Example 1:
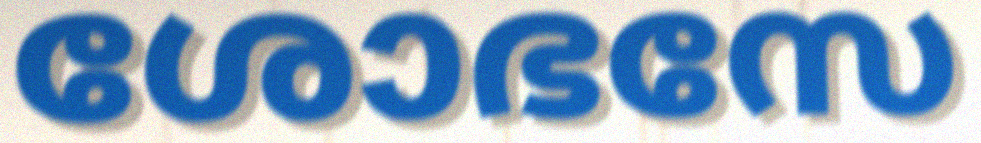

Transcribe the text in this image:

ശോഭസേ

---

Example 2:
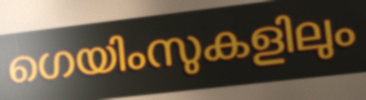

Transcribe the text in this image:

ഗെയിംസുകളിലും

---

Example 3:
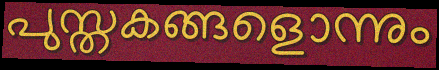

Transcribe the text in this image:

പുസ്തകങ്ങളൊന്നും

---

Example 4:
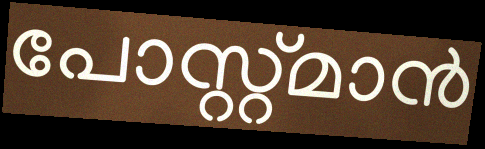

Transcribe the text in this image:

പോസ്റ്റ്മാൻ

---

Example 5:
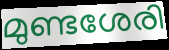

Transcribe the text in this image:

മുണ്ടശേരി